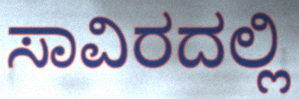
ಸಾವಿರದಲ್ಲಿ